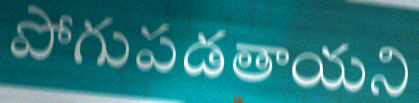
పోగుపడతాయని